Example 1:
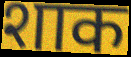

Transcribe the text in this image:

शाक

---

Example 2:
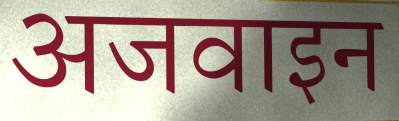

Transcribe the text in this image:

अजवाइन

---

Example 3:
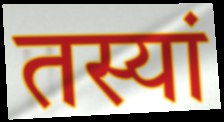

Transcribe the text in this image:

तस्यां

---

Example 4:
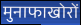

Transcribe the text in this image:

मुनाफाखोरों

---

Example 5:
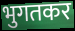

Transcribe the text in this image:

भुगतकर